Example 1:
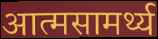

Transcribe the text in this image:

आत्मसामर्थ्य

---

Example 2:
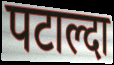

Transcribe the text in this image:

पटाल्दा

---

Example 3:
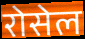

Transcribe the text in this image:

रोसेल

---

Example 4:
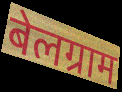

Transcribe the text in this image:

बेलग्राम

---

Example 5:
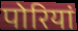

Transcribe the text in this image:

पोरियां